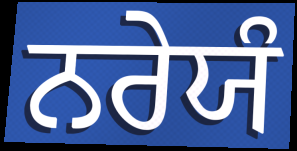
ਨਰੇਯੰ